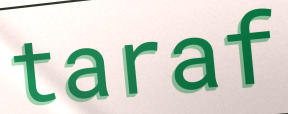
taraf